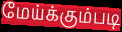
மேய்க்கும்படி